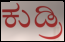
ಕುಡ್ರಿ